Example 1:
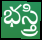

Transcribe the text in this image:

భస్త్రి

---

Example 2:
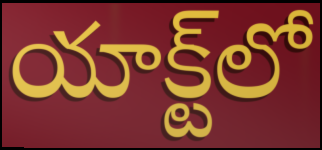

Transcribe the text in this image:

యాక్ట్‌లో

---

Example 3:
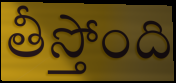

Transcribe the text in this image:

తీస్తోంది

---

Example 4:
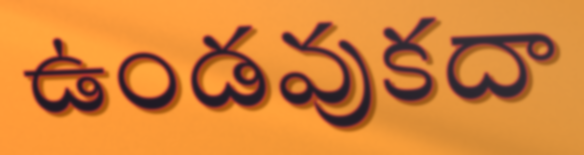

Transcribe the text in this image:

ఉండవుకదా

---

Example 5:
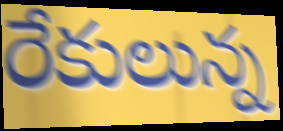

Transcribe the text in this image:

రేకులున్న